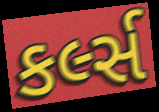
કર્લ્સ